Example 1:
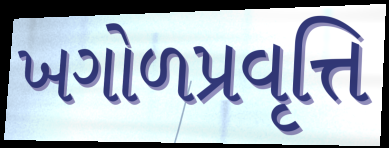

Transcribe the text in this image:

ખગોળપ્રવૃત્તિ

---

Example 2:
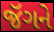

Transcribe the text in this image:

જૅગને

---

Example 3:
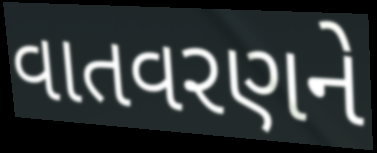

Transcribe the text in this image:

વાતવરણને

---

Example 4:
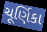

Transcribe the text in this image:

ચૂર્ણિકા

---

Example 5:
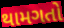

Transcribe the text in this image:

થામગતો